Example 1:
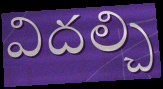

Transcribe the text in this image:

విదల్చి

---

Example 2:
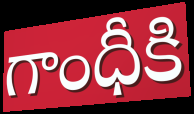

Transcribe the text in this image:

గాంధీకి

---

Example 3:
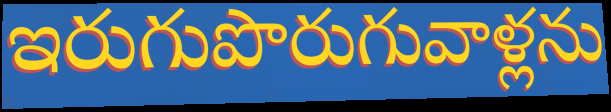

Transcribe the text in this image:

ఇరుగుపొరుగువాళ్లను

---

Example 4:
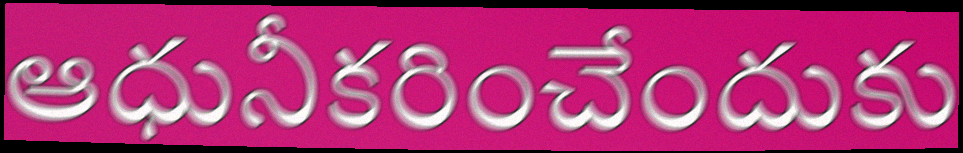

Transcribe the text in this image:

ఆధునీకరించేందుకు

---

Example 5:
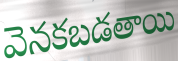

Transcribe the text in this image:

వెనకబడతాయి